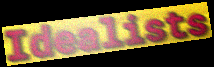
Idealists